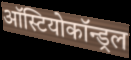
ऑस्टियोकॉन्ड्रल